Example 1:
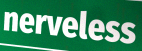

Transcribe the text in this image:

nerveless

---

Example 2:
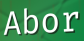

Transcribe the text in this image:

Abor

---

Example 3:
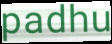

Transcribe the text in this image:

padhu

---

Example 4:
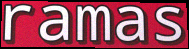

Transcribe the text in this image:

ramas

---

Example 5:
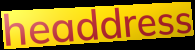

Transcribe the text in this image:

headdress